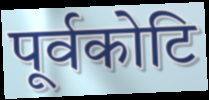
पूर्वकोटि